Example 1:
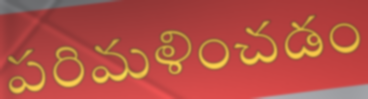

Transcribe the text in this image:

పరిమళించడం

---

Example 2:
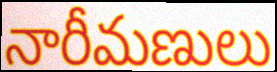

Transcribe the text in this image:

నారీమణులు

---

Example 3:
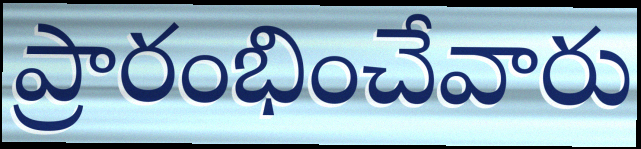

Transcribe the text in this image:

ప్రారంభించేవారు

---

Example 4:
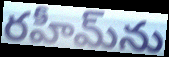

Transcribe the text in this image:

రహీమ్‌ను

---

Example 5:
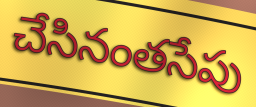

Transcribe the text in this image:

చేసినంతసేపు